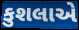
કુશલાએ